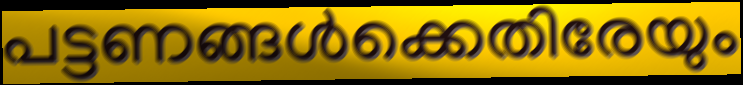
പട്ടണങ്ങൾക്കെതിരേയും